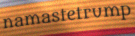
namastetrump